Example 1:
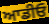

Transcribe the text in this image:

ਆਡੀਓ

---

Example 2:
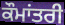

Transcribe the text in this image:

ਕੌਮਾਂਤਰੀ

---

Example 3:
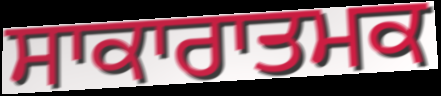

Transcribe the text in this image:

ਸਾਕਾਰਾਤਮਕ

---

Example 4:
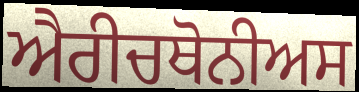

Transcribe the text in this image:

ਐਰੀਚਥੋਨੀਅਸ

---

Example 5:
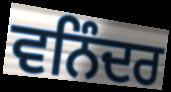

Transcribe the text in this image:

ਵਨਿੰਦਰ